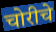
चोरीचे